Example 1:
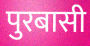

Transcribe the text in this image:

पुरबासी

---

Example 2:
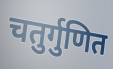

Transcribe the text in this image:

चतुर्गुणित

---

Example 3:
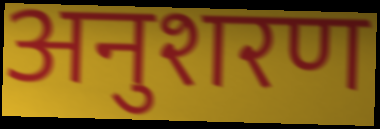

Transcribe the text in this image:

अनुशरण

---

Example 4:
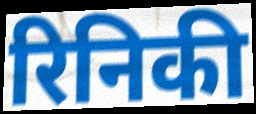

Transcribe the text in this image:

रिनिकी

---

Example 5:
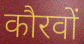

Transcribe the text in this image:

कौरवों